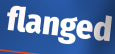
flanged